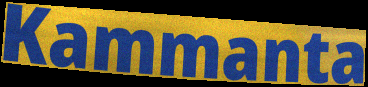
Kammanta